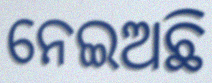
ନେଇଅଛି